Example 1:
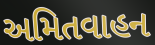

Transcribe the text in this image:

અમિતવાહન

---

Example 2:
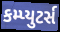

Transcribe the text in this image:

કમ્પ્યુટર્સ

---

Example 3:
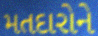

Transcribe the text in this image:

મતદારોને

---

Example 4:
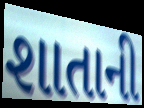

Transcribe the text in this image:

શાતાની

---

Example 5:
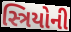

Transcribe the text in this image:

સ્ત્રિયોની